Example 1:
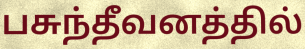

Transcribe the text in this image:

பசுந்தீவனத்தில்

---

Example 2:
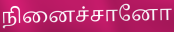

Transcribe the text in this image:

நினைச்சானோ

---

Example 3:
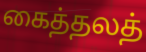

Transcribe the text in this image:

கைத்தலத்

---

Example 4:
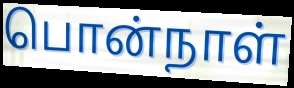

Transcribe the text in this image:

பொன்நாள்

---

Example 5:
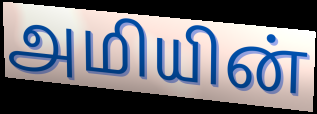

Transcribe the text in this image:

அமியின்